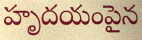
హృదయంపైన